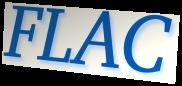
FLAC